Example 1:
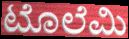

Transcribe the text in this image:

ಟೊಲೆಮಿ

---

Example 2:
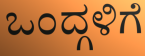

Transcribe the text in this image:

ಒಂದ್ಗಳಿಗೆ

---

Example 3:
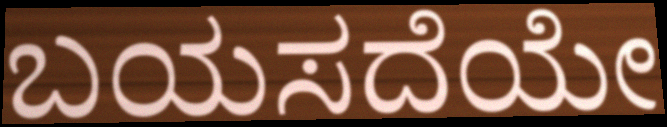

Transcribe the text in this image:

ಬಯಸದೆಯೇ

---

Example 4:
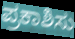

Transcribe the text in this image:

ಪ್ರಕಾಶಿಸು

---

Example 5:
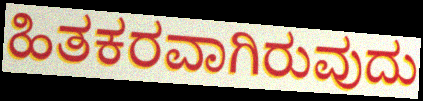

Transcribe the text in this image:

ಹಿತಕರವಾಗಿರುವುದು